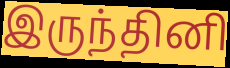
இருந்தினி